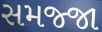
સમજ્જા